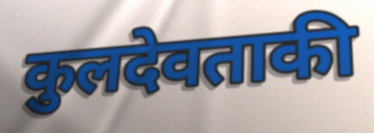
कुलदेवताकी